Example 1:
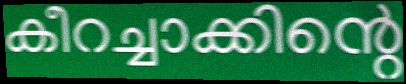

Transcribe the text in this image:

കീറച്ചാക്കിന്റെ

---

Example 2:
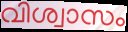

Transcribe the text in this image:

വിശ്വാസം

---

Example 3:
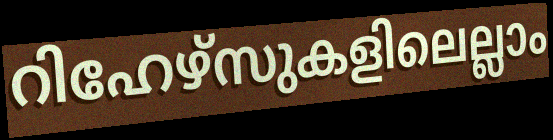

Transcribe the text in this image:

റിഹേഴ്സുകളിലെല്ലാം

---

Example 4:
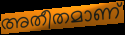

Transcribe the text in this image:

അതീതമാണ്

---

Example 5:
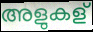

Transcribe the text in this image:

അളുകള്